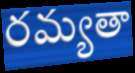
రమ్యతా